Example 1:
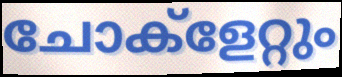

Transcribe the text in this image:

ചോക്ളേറ്റും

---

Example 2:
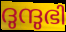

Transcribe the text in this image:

ദുന്ദുഭി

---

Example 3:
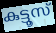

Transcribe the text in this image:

കുട്ടൂസ്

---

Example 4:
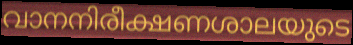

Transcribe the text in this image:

വാനനിരീക്ഷണശാലയുടെ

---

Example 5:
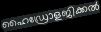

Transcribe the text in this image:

ഹൈഡ്രോളജിക്കൽ